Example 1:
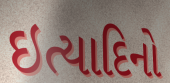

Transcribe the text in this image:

ઇત્યાદિનો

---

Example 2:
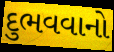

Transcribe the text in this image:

દુભવવાનો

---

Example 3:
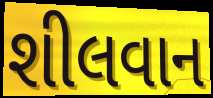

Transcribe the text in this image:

શીલવાન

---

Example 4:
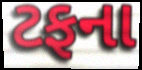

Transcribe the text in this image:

ટફના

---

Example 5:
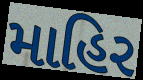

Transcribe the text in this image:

માહિર